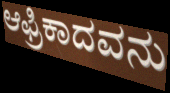
ಆಫ್ರಿಕಾದವನು